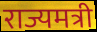
राज्यमत्री